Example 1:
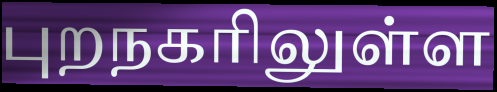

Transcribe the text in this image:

புறநகரிலுள்ள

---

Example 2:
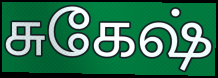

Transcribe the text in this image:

சுகேஷ்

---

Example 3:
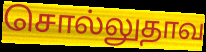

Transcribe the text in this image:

சொல்லுதாவ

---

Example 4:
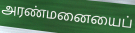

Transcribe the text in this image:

அரண்மனையைப்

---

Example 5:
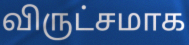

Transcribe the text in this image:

விருட்சமாக